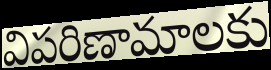
విపరిణామాలకు